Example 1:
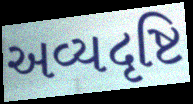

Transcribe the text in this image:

અવ્યદૃષ્ટિ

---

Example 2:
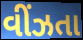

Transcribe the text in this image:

વીંઝતા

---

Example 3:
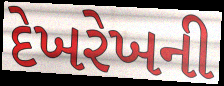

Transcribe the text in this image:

દેખરેખની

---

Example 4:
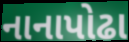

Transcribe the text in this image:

નાનાપોઢા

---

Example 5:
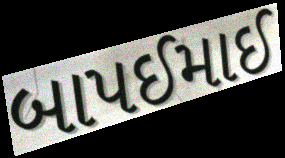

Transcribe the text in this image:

બાપઈમાઈ